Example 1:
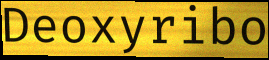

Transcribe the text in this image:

Deoxyribo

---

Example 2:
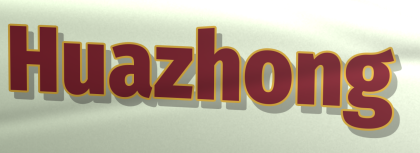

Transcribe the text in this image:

Huazhong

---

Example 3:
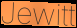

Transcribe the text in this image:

Jewitt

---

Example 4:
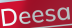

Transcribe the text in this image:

Deesa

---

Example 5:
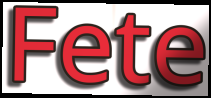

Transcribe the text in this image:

Fete